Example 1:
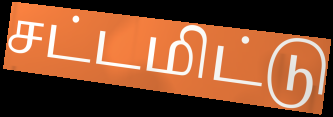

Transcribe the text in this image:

சட்டமிட்டு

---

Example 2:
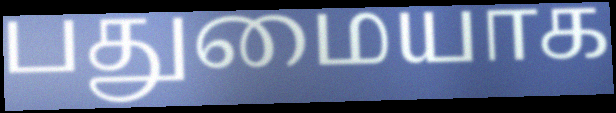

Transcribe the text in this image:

பதுமையாக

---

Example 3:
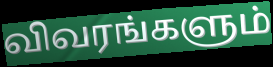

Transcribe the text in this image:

விவரங்களும்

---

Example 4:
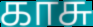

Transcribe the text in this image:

காசு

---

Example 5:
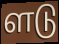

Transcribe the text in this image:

ளடு